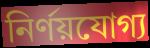
নির্ণয়যোগ্য